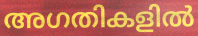
അഗതികളിൽ